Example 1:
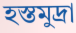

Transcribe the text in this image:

হস্তমুদ্রা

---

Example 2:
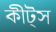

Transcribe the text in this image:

কীট্স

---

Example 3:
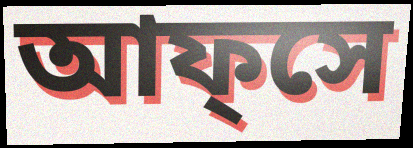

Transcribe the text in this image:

আফ্সে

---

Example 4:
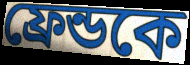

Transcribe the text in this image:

ফ্রেন্ডকে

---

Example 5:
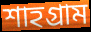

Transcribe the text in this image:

শাহগ্রাম